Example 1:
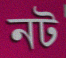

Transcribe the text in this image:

নট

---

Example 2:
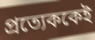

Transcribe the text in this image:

প্রত্যেককেই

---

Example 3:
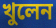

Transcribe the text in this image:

খুলেন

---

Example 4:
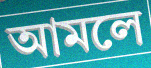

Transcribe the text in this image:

আমলে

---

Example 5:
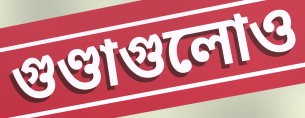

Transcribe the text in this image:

গুণ্ডাগুলোও